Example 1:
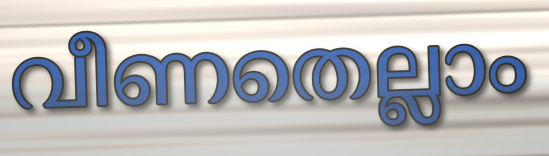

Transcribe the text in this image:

വീണതെല്ലാം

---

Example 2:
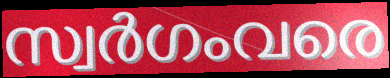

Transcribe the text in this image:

സ്വർഗംവരെ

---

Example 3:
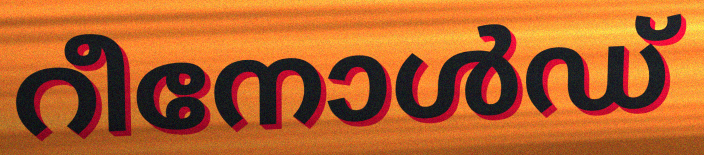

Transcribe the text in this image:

റീനോൾഡ്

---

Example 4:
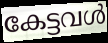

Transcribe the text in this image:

കേട്ടവൾ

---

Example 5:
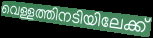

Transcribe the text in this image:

വെള്ളത്തിനടിയിലേക്ക്